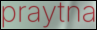
praytna